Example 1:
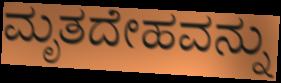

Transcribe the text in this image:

ಮೃತದೇಹವನ್ನು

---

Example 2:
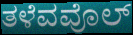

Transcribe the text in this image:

ತಳೆವವೊಲ್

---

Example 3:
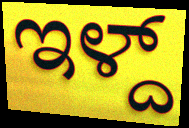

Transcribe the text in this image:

ಇಳ್ದ್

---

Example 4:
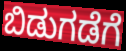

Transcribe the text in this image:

ಬಿಡುಗಡೆಗೆ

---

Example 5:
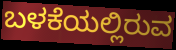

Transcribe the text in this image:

ಬಳಕೆಯಲ್ಲಿರುವ